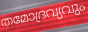
തമോദ്രവ്യവും